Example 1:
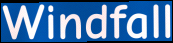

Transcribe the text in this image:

Windfall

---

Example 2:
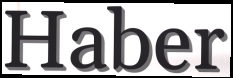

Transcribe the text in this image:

Haber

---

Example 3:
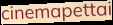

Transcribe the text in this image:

cinemapettai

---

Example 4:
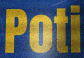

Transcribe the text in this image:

Poti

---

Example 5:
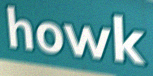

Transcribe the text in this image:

howk